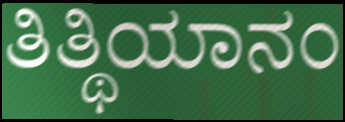
ತಿತ್ಥಿಯಾನಂ